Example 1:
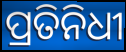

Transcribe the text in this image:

ପ୍ରତିନିଧୀ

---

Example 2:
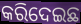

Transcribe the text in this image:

କରିଦେଇଛ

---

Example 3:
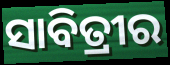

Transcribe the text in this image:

ସାବିତ୍ରୀର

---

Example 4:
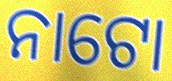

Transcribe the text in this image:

ନାଟୋ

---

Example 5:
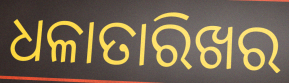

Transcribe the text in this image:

ଧଳାତାରିଖର